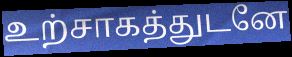
உற்சாகத்துடனே